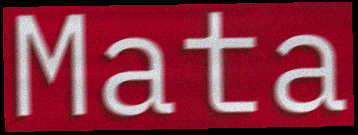
Mata